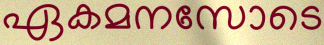
ഏകമനസോടെ